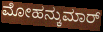
ಮೋಹನ್ಕುಮಾರ್